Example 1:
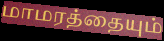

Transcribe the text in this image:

மாமரத்தையும்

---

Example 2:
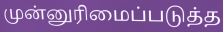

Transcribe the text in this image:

முன்னுரிமைப்படுத்த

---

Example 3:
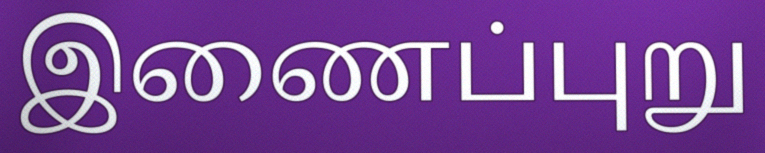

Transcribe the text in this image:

இணைப்புறு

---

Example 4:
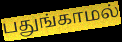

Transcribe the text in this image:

பதுங்காமல்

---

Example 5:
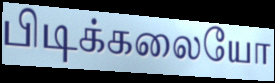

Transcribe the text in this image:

பிடிக்கலையோ